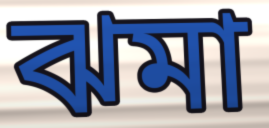
ঝমা